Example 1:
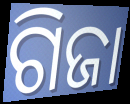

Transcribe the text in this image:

ଗିଜା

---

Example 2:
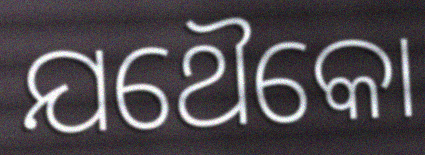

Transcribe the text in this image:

ଯଥୈକୋ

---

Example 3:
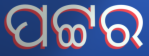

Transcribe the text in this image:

ପଟ୍ଟର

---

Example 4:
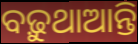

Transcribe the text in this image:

ବଢ଼ୁଥାଆନ୍ତି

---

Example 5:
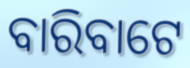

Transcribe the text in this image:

ବାରିବାଟେ